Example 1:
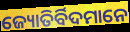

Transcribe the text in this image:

ଜ୍ୟୋତିର୍ବିଦମାନେ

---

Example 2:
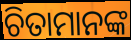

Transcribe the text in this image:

ଚିତାମାନଙ୍କ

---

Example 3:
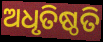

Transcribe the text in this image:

ଅଧୃତିଷ୍ଠତି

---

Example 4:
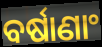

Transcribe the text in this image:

ବର୍ଷାଣାଂ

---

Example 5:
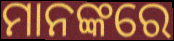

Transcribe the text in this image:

ମାନଙ୍କରେ